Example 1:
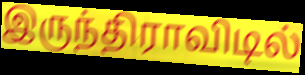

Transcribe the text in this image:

இருந்திராவிடில்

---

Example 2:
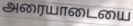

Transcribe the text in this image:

அரையாடையை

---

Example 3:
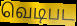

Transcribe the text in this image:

வெடிபட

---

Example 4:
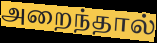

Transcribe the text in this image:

அறைந்தால்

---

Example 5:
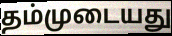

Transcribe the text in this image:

தம்முடையது